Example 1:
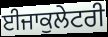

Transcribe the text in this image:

ਈਜਾਕੁਲੇਟਰੀ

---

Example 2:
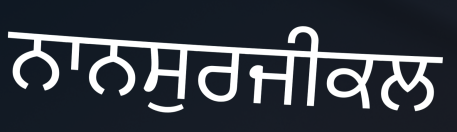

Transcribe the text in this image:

ਨਾਨਸੁਰਜੀਕਲ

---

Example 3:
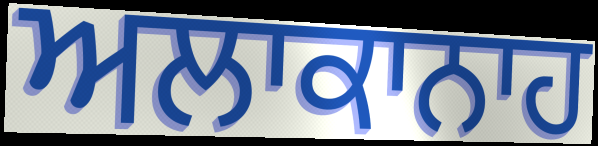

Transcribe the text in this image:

ਅਲਾਕਾਨਾਹ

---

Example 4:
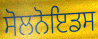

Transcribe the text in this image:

ਸੋਲਨੋਇਡਸ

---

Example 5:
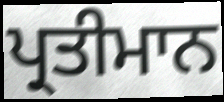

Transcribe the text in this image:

ਪ੍ਰਤੀਮਾਨ